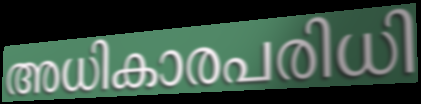
അധികാരപരിധി